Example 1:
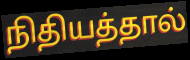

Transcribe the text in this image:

நிதியத்தால்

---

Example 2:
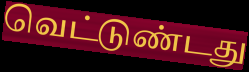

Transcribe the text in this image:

வெட்டுண்டது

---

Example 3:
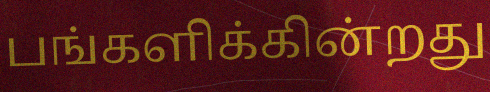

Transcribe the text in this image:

பங்களிக்கின்றது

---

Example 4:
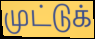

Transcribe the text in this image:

முட்டுக்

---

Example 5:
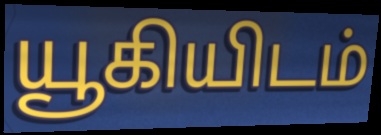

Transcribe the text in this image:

யூகியிடம்